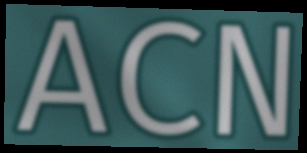
ACN